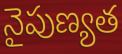
నైపుణ్యత